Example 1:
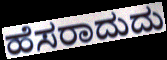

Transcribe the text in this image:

ಹೆಸರಾದುದು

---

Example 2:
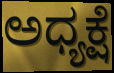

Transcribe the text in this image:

ಅಧ್ಯಕ್ಷೆ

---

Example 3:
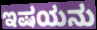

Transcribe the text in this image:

ಇಷಯನು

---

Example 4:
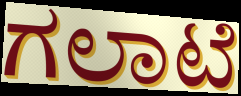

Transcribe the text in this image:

ಗಲಾಟೆ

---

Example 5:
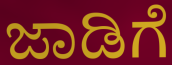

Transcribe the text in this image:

ಜಾಡಿಗೆ